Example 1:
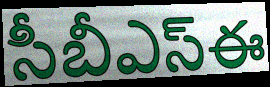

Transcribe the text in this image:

సీబీఎస్ఈ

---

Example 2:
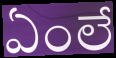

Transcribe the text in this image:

ఏంలే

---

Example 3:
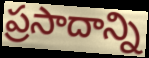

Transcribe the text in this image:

ప్రసాదాన్ని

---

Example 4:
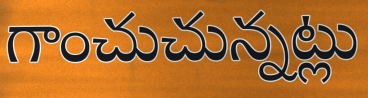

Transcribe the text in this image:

గాంచుచున్నట్లు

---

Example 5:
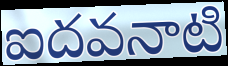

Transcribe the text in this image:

ఐదవనాటి